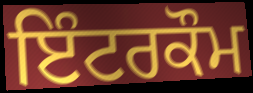
ਇੰਟਰਕੌਮ